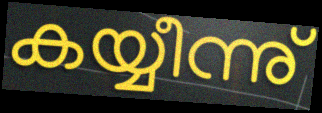
കയ്യീന്നു്